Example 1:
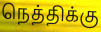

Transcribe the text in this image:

நெத்திக்கு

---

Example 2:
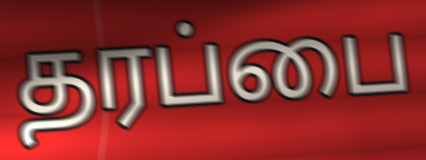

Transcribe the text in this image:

தரப்பை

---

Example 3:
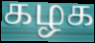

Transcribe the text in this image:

கழக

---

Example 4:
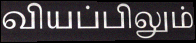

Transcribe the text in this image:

வியப்பிலும்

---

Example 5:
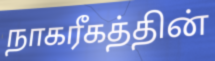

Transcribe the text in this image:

நாகரீகத்தின்